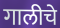
गालीचे